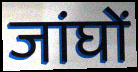
जांघों